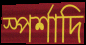
স্পর্শাদি